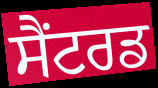
ਸੈਂਟਰਡ